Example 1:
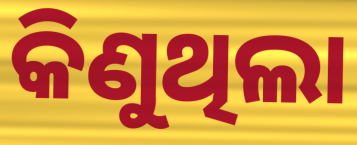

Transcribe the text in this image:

କିଣୁଥିଲା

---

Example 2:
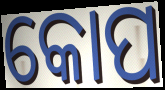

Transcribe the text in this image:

କୋପ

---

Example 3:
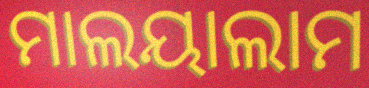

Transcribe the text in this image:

ମାଲୟାଲାମ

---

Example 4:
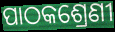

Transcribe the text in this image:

ପାଠକଶ୍ରେଣୀ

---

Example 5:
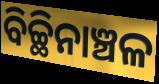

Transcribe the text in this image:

ବିଚ୍ଛିନାଞ୍ଚଳ